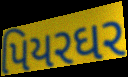
પિયરઘર